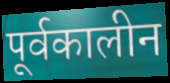
पूर्वकालीन